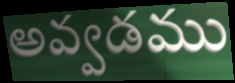
అవ్వడము